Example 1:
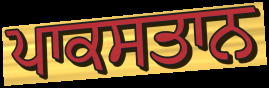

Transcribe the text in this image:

ਪਾਕਸਤਾਨ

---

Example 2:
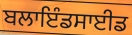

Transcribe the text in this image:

ਬਲਾਇੰਡਸਾਈਡ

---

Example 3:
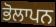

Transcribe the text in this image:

ਭੋਲਾਪਨ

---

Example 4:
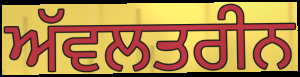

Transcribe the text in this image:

ਅੱਵਲਤਰੀਨ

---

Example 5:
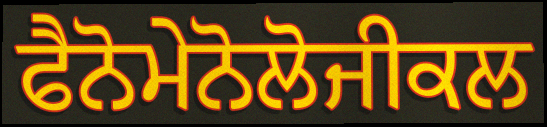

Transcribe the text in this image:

ਫੈਨੋਮੇਨੋਲੋਜੀਕਲ